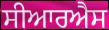
ਸੀਆਰਐਸ